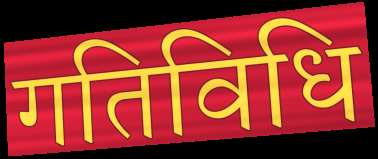
गतिविधि